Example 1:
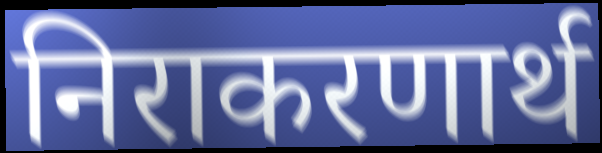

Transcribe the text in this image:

निराकरणार्थ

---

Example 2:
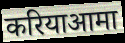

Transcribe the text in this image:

करियाआमा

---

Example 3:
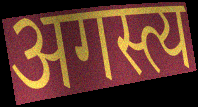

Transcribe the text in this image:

अगस्त्य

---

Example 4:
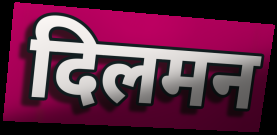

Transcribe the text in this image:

दिलमन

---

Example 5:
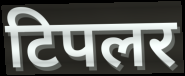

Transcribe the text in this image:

टिपलर